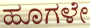
ಹೂಗಳೇ